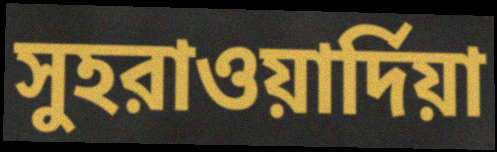
সুহরাওয়ার্দিয়া